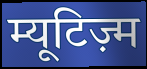
म्यूटिज़्म